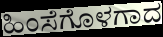
ಹಿಂಸೆಗೊಳಗಾದ